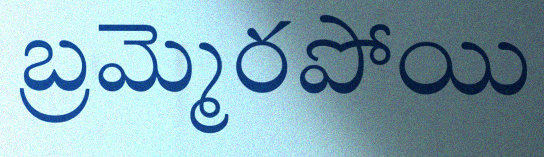
బ్రమ్మెరపోయి